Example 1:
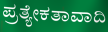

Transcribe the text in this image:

ಪ್ರತ್ಯೇಕತಾವಾದಿ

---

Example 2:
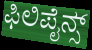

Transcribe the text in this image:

ಫಿಲಿಪೈನ್ಸ್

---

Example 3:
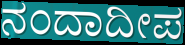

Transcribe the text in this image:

ನಂದಾದೀಪ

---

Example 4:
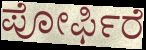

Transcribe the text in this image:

ಪೋರ್ಫಿರೆ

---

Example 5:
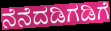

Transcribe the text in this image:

ನೆನೆದಡಿಗಡಿಗೆ